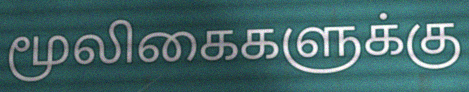
மூலிகைகளுக்கு